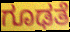
ಗೂಢತೆ